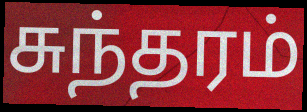
சுந்தரம்